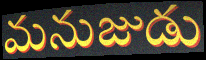
మనుజుడు